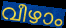
വീഴാം